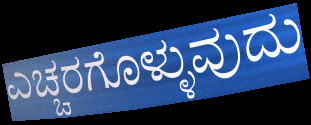
ಎಚ್ಚರಗೊಳ್ಳುವುದು